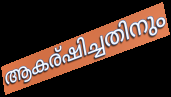
ആകര്ഷിച്ചതിനും